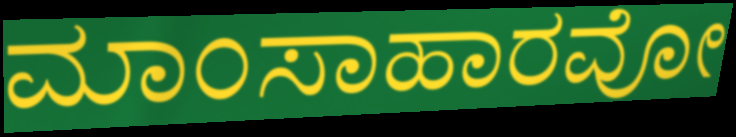
ಮಾಂಸಾಹಾರವೋ